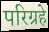
परिग्रहे